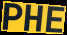
PHE